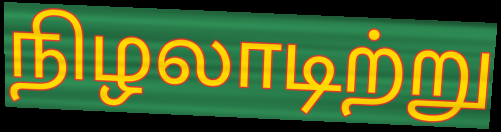
நிழலாடிற்று